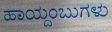
ಹಾಯ್ದಂಬುಗಳು